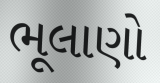
ભૂલાણો